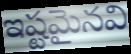
ఇష్టమైనవి